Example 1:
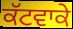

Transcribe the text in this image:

ਕੱਟਵਾਕੇ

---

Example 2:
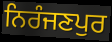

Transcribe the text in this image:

ਨਿਰੰਜਣਪੁਰ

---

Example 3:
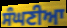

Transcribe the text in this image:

ਸੰਘਣੀਆ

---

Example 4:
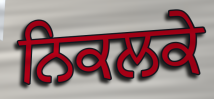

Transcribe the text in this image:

ਨਿਕਲਕੇ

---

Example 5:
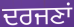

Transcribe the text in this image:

ਦਰਜਣਾਂ